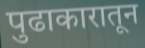
पुढाकारातून